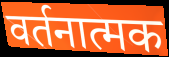
वर्तनात्मक